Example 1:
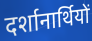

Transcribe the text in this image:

दर्शानार्थियों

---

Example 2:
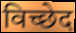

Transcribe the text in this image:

विच्छेद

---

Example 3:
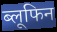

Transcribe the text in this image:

ब्लूफिन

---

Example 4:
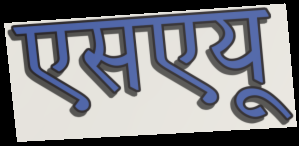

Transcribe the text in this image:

एसएयू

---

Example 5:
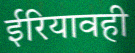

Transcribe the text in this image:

ईरियावही